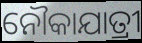
ନୌକାଯାତ୍ରୀ